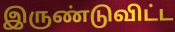
இருண்டுவிட்ட